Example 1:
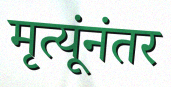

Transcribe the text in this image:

मृत्यूंनंतर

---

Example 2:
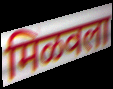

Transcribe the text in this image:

मिळवला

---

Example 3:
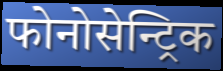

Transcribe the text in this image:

फोनोसेन्ट्रिक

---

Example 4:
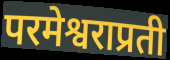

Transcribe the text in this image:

परमेश्वराप्रती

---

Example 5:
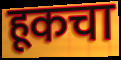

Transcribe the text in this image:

हूकचा